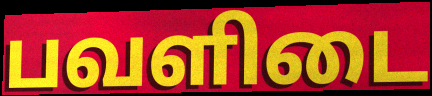
பவளிடை